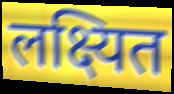
लक्ष्यित